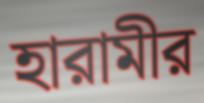
হারামীর